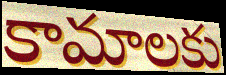
కామాలకు